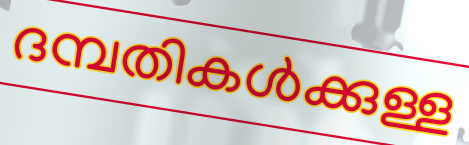
ദമ്പതികൾക്കുള്ള